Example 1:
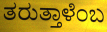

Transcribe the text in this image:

ತರುತ್ತಾಳೆಂಬ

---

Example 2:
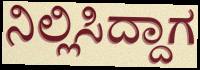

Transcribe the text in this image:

ನಿಲ್ಲಿಸಿದ್ದಾಗ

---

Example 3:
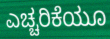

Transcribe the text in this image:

ಎಚ್ಚರಿಕೆಯೂ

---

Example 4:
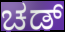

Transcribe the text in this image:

ಚಡ್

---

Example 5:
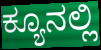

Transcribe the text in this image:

ಕ್ಯೂನಲ್ಲಿ